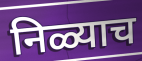
निळ्याच